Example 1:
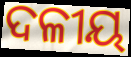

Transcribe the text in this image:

ଦଳୀୟ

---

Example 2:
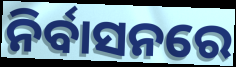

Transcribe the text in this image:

ନିର୍ବାସନରେ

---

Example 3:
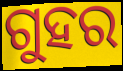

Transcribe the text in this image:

ଗୁହର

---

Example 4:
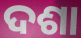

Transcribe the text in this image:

ଦଶା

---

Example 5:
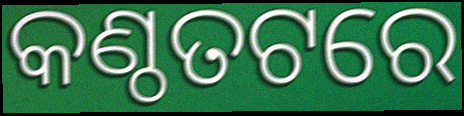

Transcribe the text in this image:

କଣ୍ଠତଟରେ